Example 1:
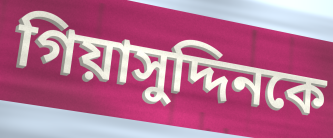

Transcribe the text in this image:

গিয়াসুদ্দিনকে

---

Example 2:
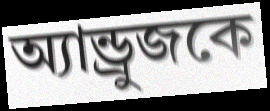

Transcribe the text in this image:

অ্যান্ড্রুজকে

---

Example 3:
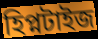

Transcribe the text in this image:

হিপ্নটাইজ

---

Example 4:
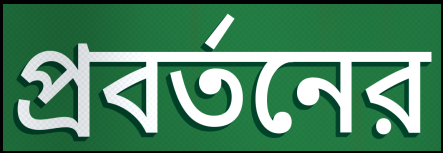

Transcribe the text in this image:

প্রবর্তনের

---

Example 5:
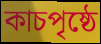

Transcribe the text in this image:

কাচপৃষ্ঠে